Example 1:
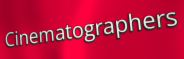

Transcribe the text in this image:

Cinematographers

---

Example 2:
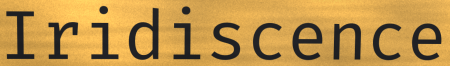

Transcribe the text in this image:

Iridiscence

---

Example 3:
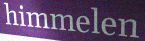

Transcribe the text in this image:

himmelen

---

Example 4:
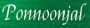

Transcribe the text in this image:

Ponnoonjal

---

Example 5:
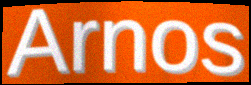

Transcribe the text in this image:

Arnos